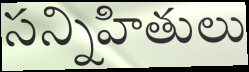
సన్నిహితులు